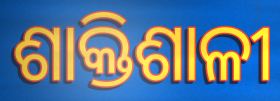
ଶାକ୍ତିଶାଳୀ